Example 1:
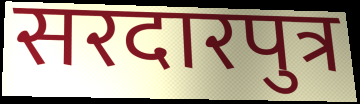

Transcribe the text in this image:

सरदारपुत्र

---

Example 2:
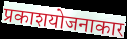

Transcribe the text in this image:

प्रकाशयोजनाकार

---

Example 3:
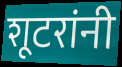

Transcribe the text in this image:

शूटरांनी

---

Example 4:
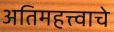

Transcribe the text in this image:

अतिमहत्त्वाचे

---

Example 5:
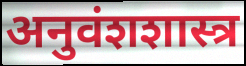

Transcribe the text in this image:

अनुवंशशास्त्र